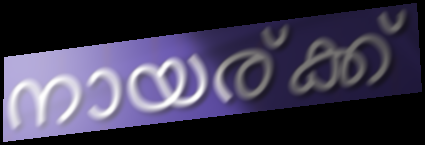
നായര്ക്ക്